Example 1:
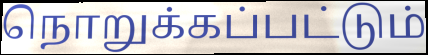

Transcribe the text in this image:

நொறுக்கப்பட்டும்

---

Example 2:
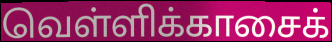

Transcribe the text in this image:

வெள்ளிக்காசைக்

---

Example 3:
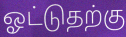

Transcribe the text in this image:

ஓட்டுதற்கு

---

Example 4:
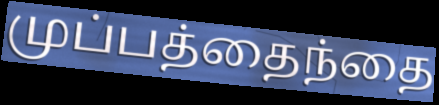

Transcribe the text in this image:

முப்பத்தைந்தை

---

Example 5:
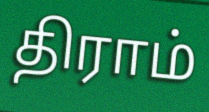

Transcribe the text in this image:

திராம்